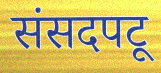
संसदपटू